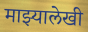
माझ्यालेखी